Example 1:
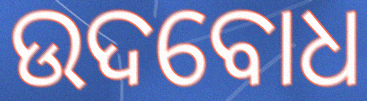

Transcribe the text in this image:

ଉଦବୋଧ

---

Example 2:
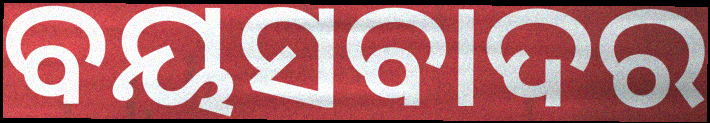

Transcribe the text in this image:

ବୟସବାଦର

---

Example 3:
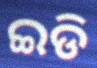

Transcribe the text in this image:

ଇଡି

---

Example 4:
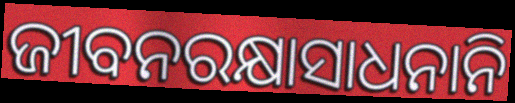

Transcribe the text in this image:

ଜୀବନରକ୍ଷାସାଧନାନି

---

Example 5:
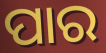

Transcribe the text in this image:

ପାର